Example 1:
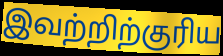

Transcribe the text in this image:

இவற்றிற்குரிய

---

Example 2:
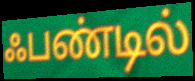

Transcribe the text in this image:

ஃபண்டில்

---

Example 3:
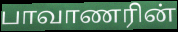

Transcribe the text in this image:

பாவாணரின்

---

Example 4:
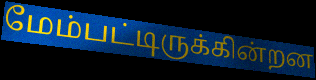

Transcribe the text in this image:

மேம்பட்டிருக்கின்றன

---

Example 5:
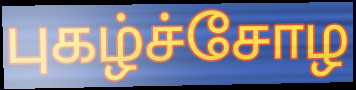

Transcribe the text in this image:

புகழ்ச்சோழ